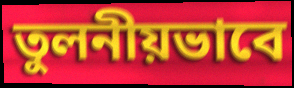
তুলনীয়ভাবে